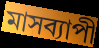
মাসব্যাপী